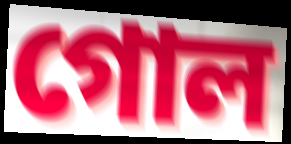
গোল